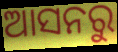
ଆସନରୁ